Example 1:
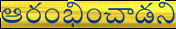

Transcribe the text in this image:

ఆరంభించాడని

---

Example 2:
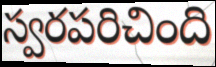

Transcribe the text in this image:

స్వరపరిచింది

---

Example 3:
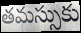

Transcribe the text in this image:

తమస్సుకు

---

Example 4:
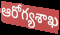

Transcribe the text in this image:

ఆరోగ్యశాఖ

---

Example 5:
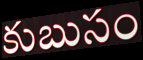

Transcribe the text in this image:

కుబుసం